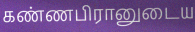
கண்ணபிரானுடைய